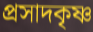
প্রসাদকৃষ্ণ